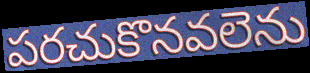
పరచుకొనవలెను